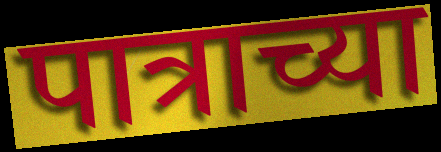
पात्राच्या